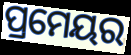
ପ୍ରମେୟର